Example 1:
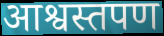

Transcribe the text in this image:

आश्वस्तपण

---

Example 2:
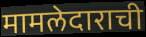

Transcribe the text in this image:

मामलेदाराची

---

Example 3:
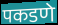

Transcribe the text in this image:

पकडणे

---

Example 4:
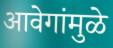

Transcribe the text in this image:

आवेगांमुळे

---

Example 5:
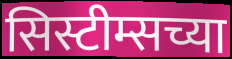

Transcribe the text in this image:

सिस्टीम्सच्या